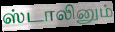
ஸ்டாலினும்